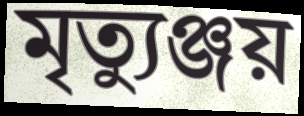
মৃত্যুঞ্জয়